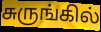
சுருங்கில்